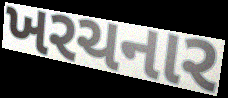
ખરચનાર